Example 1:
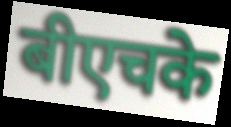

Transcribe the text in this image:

बीएचके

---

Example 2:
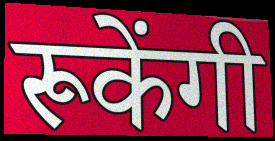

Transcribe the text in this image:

रूकेंगी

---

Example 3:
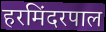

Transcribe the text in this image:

हरमिंदरपाल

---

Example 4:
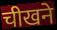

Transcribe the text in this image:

चीखने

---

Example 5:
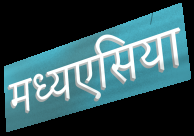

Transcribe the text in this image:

मध्यएसिया